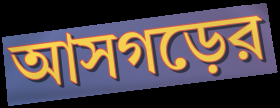
আসগড়ের